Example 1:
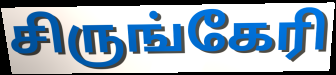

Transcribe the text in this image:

சிருங்கேரி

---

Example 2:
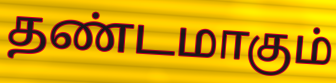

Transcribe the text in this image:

தண்டமாகும்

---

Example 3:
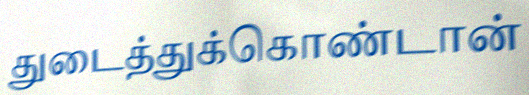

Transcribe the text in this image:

துடைத்துக்கொண்டான்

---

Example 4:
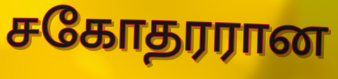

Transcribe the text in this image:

சகோதரரான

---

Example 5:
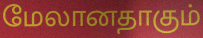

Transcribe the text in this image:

மேலானதாகும்